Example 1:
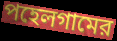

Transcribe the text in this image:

পহেলগামের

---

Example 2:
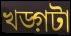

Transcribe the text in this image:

খড়্গটা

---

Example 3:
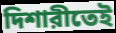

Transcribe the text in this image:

দিশারীতেই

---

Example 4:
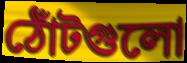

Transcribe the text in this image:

ঠোঁটগুলো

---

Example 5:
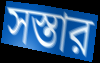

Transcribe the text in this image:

সস্তার